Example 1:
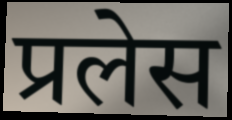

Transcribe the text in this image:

प्रलेस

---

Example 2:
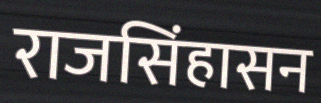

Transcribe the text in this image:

राजसिंहासन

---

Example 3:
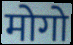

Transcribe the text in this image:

मोगो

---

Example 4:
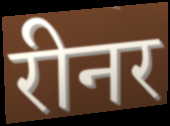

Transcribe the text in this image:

रीनर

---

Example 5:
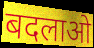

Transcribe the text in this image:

बदलाओ